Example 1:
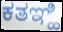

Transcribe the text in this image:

ಕತಞ್ಹಿ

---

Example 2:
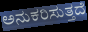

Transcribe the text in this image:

ಅನುಕರಿಸುತ್ತದೆ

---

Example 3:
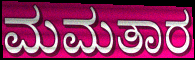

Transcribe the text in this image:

ಮಮತಾರ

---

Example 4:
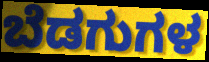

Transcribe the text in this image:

ಬೆಡಗುಗಳ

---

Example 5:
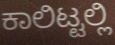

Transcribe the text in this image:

ಕಾಲಿಟ್ಟಲ್ಲಿ